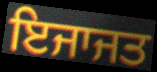
ਇਜਾਜਤ